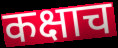
कक्षाच